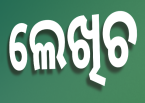
ଲେଖିଚ